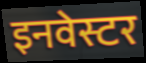
इनवेस्टर